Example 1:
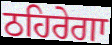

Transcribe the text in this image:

ਠਹਿਰੇਗਾ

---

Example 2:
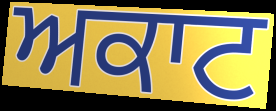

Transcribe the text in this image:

ਅਕਾਟ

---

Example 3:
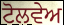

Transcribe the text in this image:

ਟੋਲਵੇਅ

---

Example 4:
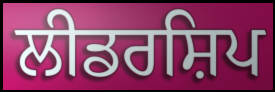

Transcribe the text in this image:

ਲੀਡਰਸ਼ਿਪ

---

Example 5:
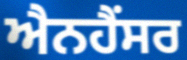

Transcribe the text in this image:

ਐਨਹੈਂਸਰ